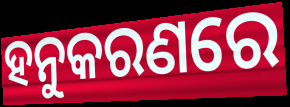
ହନୁକରଣରେ